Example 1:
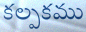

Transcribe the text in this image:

కల్పకము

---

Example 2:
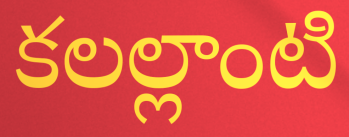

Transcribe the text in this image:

కలల్లాంటి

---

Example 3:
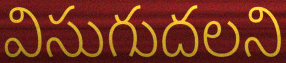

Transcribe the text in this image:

విసుగుదలని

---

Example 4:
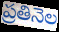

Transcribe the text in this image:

ప్రతినెల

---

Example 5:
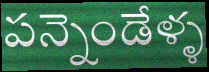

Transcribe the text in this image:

పన్నెండేళ్ళ